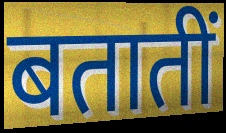
बतातीं